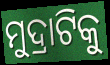
ମୁଦ୍ରାଟିକୁ